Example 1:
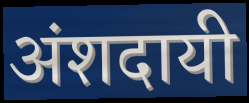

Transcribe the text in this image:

अंशदायी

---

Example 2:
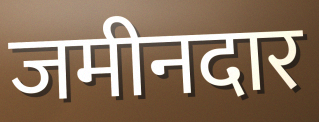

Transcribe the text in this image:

जमीनदार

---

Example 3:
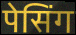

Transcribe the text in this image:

पेसिंग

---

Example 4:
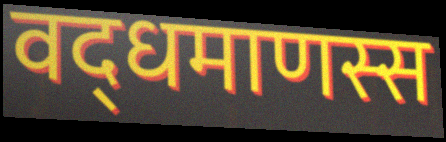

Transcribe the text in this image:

वद्धमाणस्स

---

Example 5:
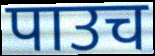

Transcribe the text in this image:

पाउच